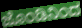
ಜೊಂಡಿನಿಂದ